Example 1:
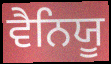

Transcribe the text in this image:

ਵੈਨਿਯੂ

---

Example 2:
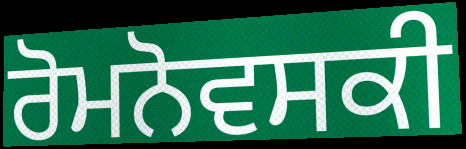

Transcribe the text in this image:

ਰੋਮਨੋਵਸਕੀ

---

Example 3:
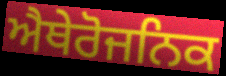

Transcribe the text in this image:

ਐਥੇਰੋਜਨਿਕ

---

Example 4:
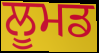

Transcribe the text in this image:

ਲੂਮਡ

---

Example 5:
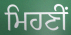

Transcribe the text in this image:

ਮਿਹਣੀਂ